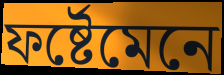
ফৰ্ষ্টেমেনে